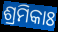
ଶ୍ରମିକାଃ